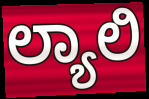
ಲ್ಯಾಲಿ